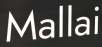
Mallai